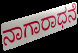
ನಾಗಾರಾಧನೆ